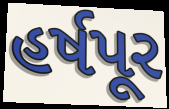
હર્ષપૂર